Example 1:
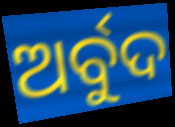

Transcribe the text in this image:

ଅର୍ବୁଦ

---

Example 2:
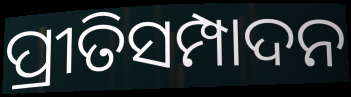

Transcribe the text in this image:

ପ୍ରୀତିସମ୍ପାଦନ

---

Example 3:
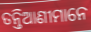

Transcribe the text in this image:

ତନ୍ତିଆଣୀମାନେ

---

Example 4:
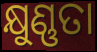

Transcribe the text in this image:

କ୍ଷୁଣ୍ଣତା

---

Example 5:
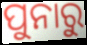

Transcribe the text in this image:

ପୁନାରୁ